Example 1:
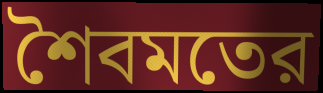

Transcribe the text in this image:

শৈবমতের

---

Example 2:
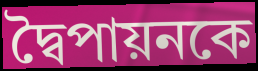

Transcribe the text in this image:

দ্বৈপায়নকে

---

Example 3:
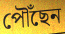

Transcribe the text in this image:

পৌঁছেন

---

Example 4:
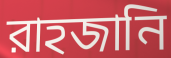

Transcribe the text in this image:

রাহজানি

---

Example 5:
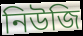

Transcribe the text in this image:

নিউজি